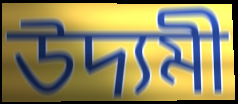
উদ্যমী